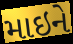
માઇને